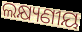
ଲକ୍ଷ୍ୟଣୀୟ